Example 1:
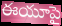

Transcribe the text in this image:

ఈయూపై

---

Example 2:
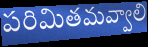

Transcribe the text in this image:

పరిమితమవ్వాలి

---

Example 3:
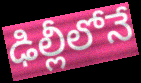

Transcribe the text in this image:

ఢిల్లీలోనే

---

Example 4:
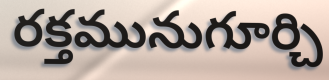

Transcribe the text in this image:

రక్తమునుగూర్చి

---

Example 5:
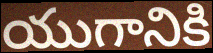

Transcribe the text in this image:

యుగానికి